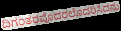
ದಿಗಂತರವೊದರಲೊದರಿಸಿದನು